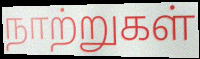
நாற்றுகள்